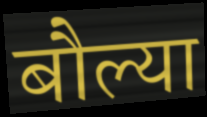
बौल्या